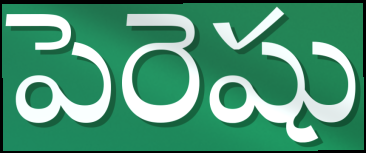
పెరెషు